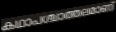
കഥാപശ്ചാത്തലമാണ്